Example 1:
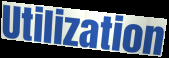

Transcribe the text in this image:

Utilization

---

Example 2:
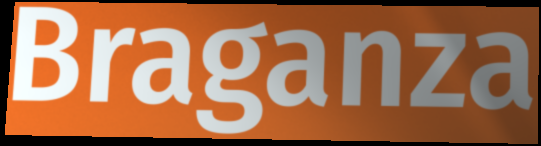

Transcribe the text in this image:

Braganza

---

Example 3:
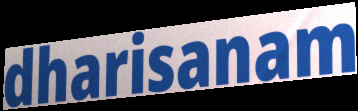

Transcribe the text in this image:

dharisanam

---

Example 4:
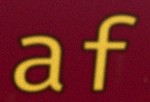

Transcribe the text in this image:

af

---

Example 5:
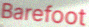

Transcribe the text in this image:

Barefoot